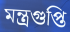
মন্ত্রগুপ্তি